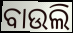
ବାଉଲି